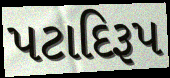
પટાદિરૂપ